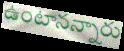
ఉంటానన్నారు